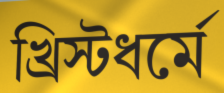
খ্রিস্টধর্মে